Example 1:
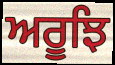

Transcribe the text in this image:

ਅਰੂਝਿ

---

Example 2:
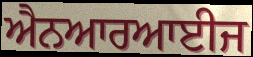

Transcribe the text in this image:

ਐਨਆਰਆਈਜ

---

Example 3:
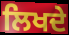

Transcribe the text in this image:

ਲਿਖਦੇ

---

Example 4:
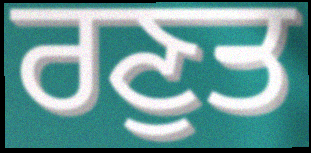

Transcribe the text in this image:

ਰਣੁਤ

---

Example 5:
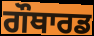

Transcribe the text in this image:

ਗੌਥਾਰਡ